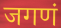
जगणं